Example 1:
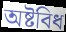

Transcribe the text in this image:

অষ্টবিধ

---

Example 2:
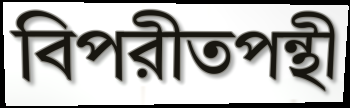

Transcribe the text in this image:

বিপরীতপন্থী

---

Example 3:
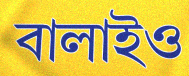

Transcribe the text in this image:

বালাইও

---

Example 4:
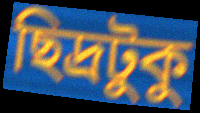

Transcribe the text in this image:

ছিদ্রটুকু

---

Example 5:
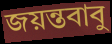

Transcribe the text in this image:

জয়ন্তবাবু